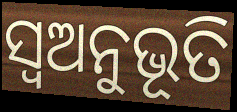
ସ୍ୱଅନୁଭୂତି